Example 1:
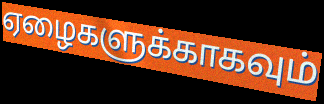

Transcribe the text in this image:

ஏழைகளுக்காகவும்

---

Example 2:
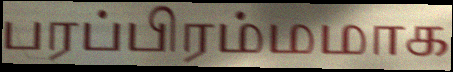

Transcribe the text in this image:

பரப்பிரம்மமாக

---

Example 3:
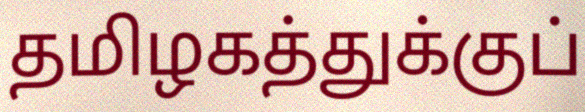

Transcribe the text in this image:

தமிழகத்துக்குப்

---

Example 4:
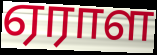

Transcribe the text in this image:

ஏராள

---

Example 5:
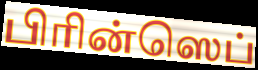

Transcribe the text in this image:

பிரின்ஸெப்